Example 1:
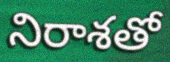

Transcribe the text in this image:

నిరాశతో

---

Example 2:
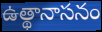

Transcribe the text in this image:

ఉత్థానాసనం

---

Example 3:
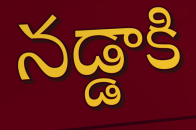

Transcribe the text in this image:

నడ్డాకి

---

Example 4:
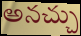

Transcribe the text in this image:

అనచ్చు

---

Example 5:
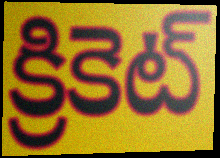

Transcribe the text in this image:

క్రికెట్